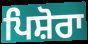
ਪਿਸ਼ੋਰਾ